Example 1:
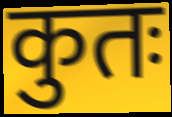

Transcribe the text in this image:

कुतः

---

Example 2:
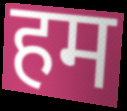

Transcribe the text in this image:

हम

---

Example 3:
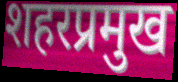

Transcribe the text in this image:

शहरप्रमुख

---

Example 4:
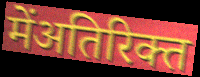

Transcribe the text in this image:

मेंअतिरिक्त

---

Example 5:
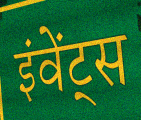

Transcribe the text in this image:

इंवेंट्स